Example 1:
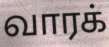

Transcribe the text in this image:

வாரக்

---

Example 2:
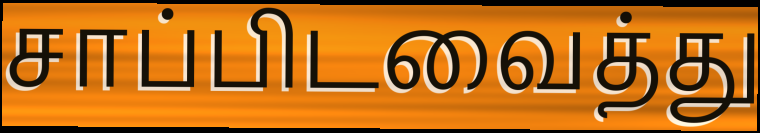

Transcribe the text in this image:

சாப்பிடவைத்து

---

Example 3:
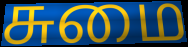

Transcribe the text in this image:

சுமை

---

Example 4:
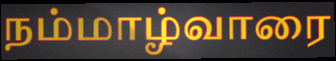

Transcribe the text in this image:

நம்மாழ்வாரை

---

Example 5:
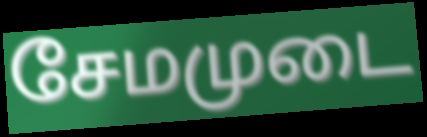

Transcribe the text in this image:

சேமமுடை